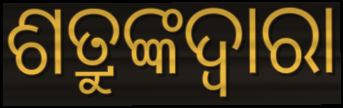
ଶତ୍ରୁଙ୍କଦ୍ୱାରା